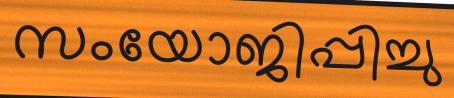
സംയോജിപ്പിച്ചു